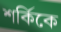
শর্কিকে